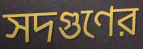
সদগুণের